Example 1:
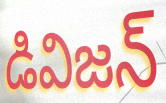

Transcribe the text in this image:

డివిజన్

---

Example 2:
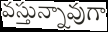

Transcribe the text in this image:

వస్తున్నావుగా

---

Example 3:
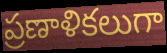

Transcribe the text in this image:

ప్రణాళికలుగా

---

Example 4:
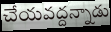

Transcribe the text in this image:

చేయవద్దన్నాడు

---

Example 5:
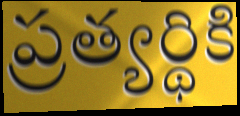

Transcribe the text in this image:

ప్రత్యర్థికి